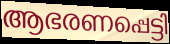
ആഭരണപ്പെട്ടി